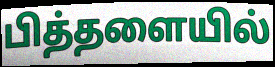
பித்தளையில்